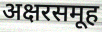
अक्षरसमूह